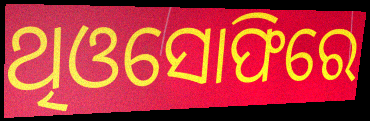
ଥିଓସୋଫିରେ